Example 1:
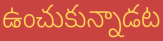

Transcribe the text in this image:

ఉంచుకున్నాడట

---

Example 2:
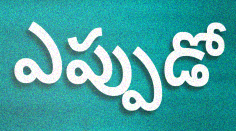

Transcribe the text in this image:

ఎప్పుడో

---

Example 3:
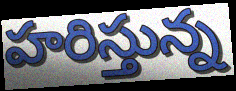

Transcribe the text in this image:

హరిస్తున్న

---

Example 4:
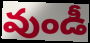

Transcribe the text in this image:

వుండీ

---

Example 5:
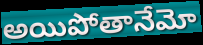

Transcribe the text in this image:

అయిపోతానేమో